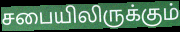
சபையிலிருக்கும்